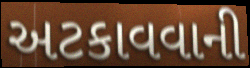
અટકાવવાની